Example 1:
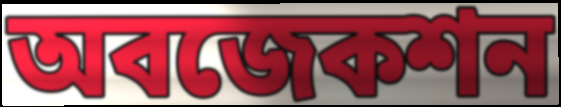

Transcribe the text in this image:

অবজেকশন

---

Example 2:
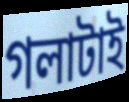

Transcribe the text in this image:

গলাটাই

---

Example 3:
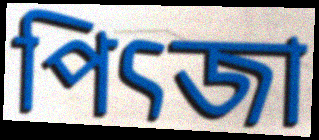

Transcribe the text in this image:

পিৎজা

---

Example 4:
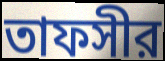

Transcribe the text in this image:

তাফসীর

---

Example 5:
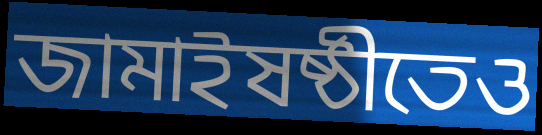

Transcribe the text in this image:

জামাইষষ্ঠীতেও